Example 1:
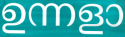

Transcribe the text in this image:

ഉന്നളാ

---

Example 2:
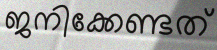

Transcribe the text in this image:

ജനിക്കേണ്ടത്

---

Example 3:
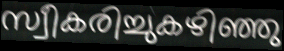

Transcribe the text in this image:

സ്വീകരിച്ചുകഴിഞ്ഞു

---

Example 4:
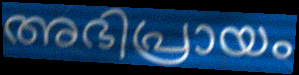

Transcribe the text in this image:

അഭിപ്രായം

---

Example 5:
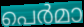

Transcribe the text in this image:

പെർമാ